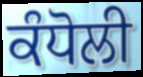
ਕੰਧੋਲੀ